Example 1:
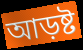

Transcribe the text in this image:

আড়ষ্ট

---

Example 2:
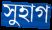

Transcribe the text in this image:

সুহাগ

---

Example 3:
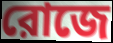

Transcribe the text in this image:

রোজে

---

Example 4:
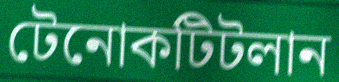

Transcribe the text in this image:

টেনোকটিটলান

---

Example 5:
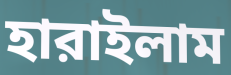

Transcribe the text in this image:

হারাইলাম